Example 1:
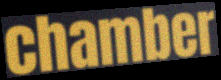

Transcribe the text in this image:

chamber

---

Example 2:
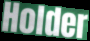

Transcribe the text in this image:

Holder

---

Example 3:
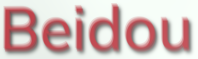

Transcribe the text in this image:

Beidou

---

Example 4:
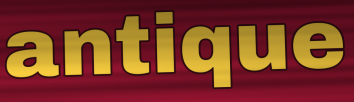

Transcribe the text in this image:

antique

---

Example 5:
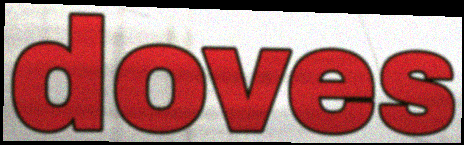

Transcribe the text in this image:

doves